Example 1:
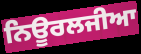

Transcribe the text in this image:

ਨਿਊਰਲਜੀਆ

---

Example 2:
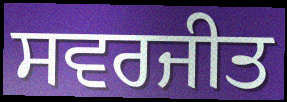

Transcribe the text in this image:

ਸਵਰਜੀਤ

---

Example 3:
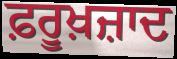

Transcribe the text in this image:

ਫ਼ਰੂਖ਼ਜ਼ਾਦ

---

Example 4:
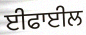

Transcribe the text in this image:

ਈਫਾਈਲ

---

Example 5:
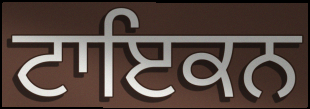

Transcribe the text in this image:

ਟਾਇਕਨ